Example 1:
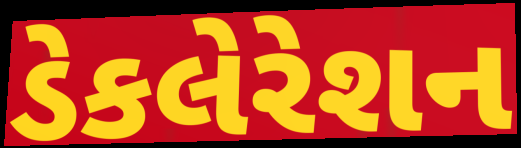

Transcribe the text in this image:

ડેકલેરેશન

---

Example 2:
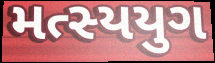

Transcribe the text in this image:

મત્સ્યયુગ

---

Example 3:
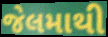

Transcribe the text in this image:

જેલમાથી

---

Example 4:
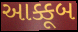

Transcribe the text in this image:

આક્કૂબ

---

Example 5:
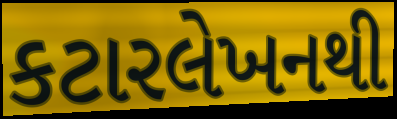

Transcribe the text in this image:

કટારલેખનથી